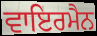
ਵਾਇਰਮੈਨ